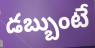
డబ్బుంటే